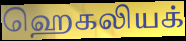
ஹெகலியக்